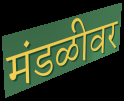
मंडळीवर